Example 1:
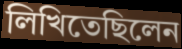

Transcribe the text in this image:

লিখিতেছিলেন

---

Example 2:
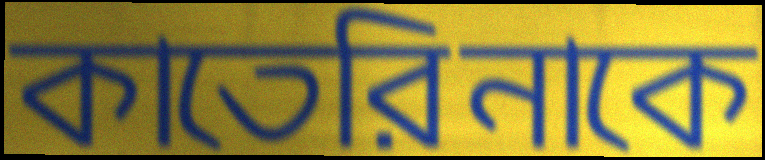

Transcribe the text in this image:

কাতেরিনাকে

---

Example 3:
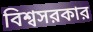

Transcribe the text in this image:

বিশ্বসরকার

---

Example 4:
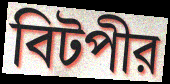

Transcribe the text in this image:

বিটপীর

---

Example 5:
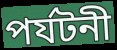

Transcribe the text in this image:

পর্যটনী